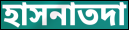
হাসনাতদা